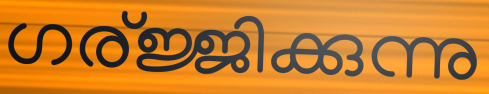
ഗര്ജ്ജിക്കുന്നു